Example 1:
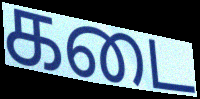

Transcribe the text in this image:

கடை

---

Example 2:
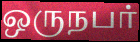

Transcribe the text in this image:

ஒருநபர்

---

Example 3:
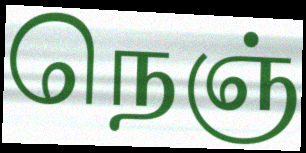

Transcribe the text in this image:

நெஞ்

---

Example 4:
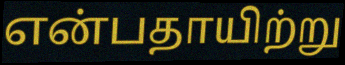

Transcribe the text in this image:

என்பதாயிற்று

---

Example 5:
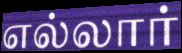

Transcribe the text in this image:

எல்லார்